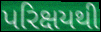
પરિક્ષયથી